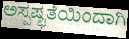
ಅಸ್ಪಷ್ಟತೆಯಿಂದಾಗಿ